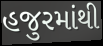
હજુરમાંથી